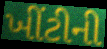
ખીંટીની